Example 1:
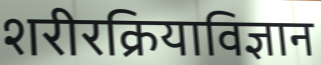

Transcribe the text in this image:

शरीरक्रियाविज्ञान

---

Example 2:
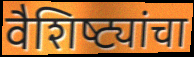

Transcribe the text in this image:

वैशिष्ट्यांचा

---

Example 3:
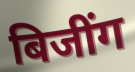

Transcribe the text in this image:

बिजींग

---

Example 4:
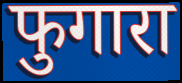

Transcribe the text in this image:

फुगारा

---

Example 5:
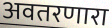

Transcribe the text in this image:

अवतरणारा